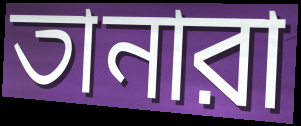
তানারা